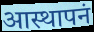
आस्थापनं